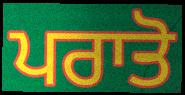
ਪਰਾਤੋ